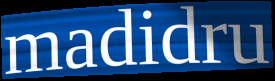
madidru